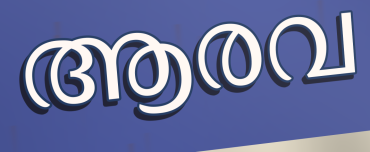
ആരവ